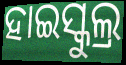
ହାଇସ୍କୁଲ୍ର